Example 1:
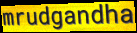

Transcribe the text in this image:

mrudgandha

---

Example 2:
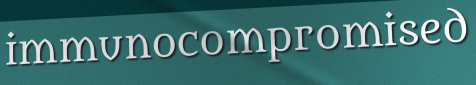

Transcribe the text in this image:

immunocompromised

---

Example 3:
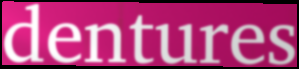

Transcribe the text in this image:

dentures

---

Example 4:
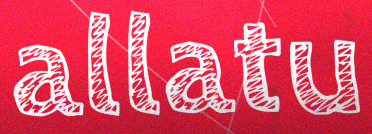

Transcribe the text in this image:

allatu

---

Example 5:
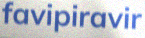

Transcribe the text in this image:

favipiravir